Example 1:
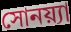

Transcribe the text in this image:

সোনয়্যা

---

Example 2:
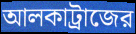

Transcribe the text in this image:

আলকাট্রাজের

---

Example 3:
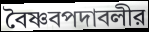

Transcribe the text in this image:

বৈষ্ণবপদাবলীর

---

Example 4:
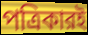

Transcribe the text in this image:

পত্রিকারই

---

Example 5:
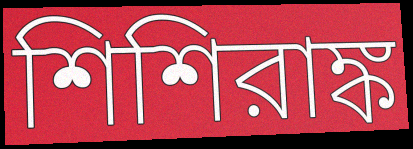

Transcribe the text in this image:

শিশিরাঙ্ক